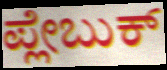
ಪ್ಲೇಬುಕ್